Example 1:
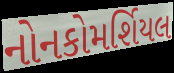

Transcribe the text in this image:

નોનકોમર્શિયલ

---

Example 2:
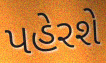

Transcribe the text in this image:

પહેરશે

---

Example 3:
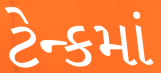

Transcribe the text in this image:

ટેન્કમાં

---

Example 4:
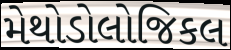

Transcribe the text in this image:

મેથોડોલોજિકલ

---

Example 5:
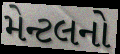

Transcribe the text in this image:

મેન્ટલનો